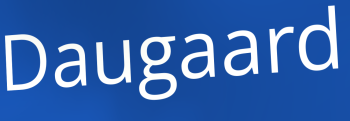
Daugaard